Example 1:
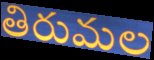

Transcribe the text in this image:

తిరుమల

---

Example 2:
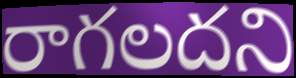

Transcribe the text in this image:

రాగలదని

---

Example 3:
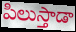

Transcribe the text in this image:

పిలుస్తాడా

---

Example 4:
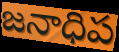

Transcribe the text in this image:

జనాధిప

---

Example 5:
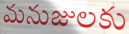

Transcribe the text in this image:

మనుజులకు